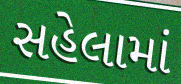
સહેલામાં